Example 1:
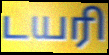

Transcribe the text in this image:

டயரி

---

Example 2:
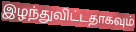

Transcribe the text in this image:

இழந்துவிட்டதாகவும்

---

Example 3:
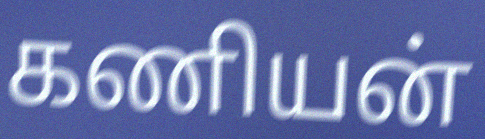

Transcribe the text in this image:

கணியன்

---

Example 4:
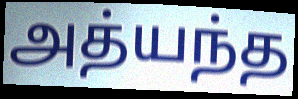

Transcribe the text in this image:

அத்யந்த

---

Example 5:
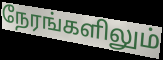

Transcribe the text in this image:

நேரங்களிலும்